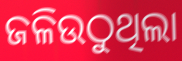
ଜଳିଉଠୁଥିଲା